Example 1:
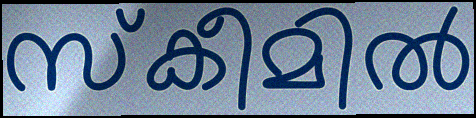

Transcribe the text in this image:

സ്കീമിൽ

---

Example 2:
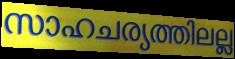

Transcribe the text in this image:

സാഹചര്യത്തിലല്ല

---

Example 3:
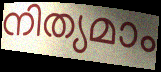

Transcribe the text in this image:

നിത്യമാം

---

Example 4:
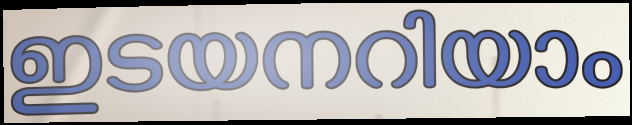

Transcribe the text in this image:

ഇടയനറിയാം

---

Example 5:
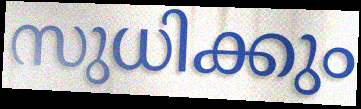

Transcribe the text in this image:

സുധിക്കും